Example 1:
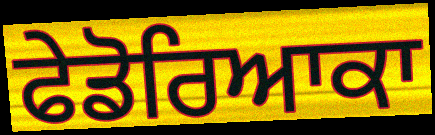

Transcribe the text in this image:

ਫੇਡੋਰਿਆਕਾ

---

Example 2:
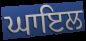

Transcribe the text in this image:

ਘਾਇਲ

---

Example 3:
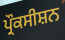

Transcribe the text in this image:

ਪ੍ਰੌਕਸੀਸ਼ਨ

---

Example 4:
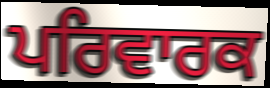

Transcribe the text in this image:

ਪਰਿਵਾਰਕ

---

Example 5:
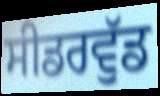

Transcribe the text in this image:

ਸੀਡਰਵੁੱਡ